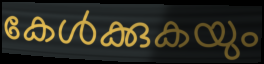
കേൾക്കുകയും